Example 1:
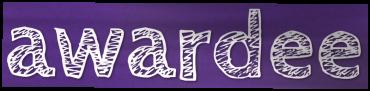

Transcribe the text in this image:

awardee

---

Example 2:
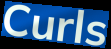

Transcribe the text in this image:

Curls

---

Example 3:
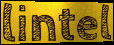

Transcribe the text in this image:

lintel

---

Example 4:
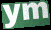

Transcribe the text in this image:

ym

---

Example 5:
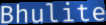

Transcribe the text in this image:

Bhulite